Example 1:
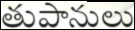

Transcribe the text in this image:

తుపానులు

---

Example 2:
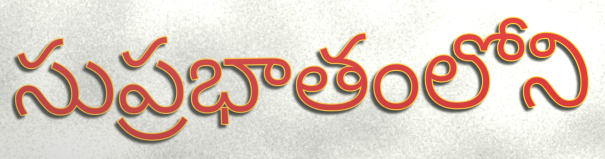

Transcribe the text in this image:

సుప్రభాతంలోని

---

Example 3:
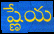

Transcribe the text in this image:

ష్ణేయ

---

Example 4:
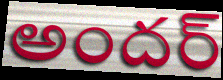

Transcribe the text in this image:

అందర్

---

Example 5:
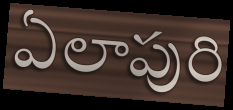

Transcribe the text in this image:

ఏలాపురి